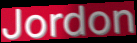
Jordon